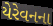
યેરેવનના